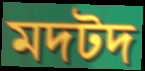
মদটদ